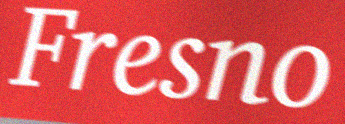
Fresno